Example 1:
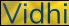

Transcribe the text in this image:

Vidhi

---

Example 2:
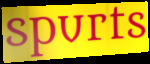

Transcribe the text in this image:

spurts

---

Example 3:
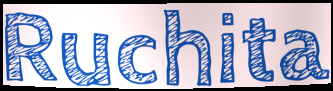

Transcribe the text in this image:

Ruchita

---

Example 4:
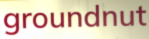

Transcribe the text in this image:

groundnut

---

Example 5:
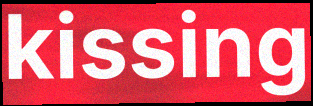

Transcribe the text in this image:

kissing